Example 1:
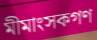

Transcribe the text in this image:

মীমাংসকগণ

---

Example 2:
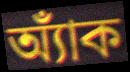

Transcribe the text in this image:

অ্যাঁক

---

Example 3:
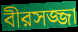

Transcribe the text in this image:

বীরসজ্জা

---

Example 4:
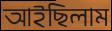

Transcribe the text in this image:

আইছিলাম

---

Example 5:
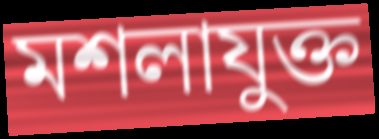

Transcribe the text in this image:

মশলাযুক্ত